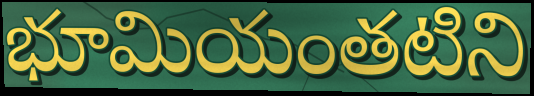
భూమియంతటిని